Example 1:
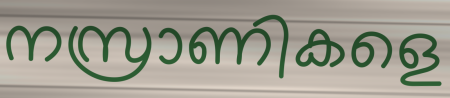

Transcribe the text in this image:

നസ്രാണികളെ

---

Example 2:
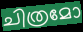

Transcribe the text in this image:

ചിത്രമോ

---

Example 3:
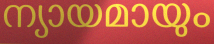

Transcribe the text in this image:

ന്യായമായും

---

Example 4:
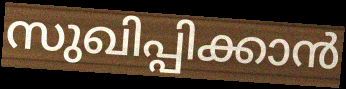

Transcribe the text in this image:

സുഖിപ്പിക്കാൻ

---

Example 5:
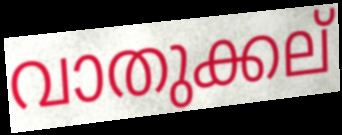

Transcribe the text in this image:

വാതുക്കല്